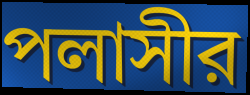
পলাসীর